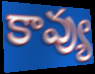
కావ్యు